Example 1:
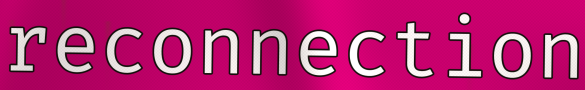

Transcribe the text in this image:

reconnection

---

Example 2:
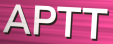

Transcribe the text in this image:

APTT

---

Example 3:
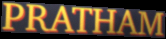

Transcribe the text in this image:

PRATHAM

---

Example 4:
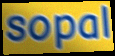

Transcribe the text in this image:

sopal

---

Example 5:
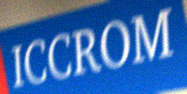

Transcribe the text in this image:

ICCROM